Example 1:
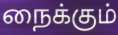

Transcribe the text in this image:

நைக்கும்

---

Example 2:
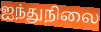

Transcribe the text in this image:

ஐந்துநிலை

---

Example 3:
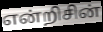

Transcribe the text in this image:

என்றிசின்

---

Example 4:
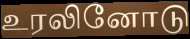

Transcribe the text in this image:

உரலினோடு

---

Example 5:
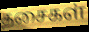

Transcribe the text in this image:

தசைகள்